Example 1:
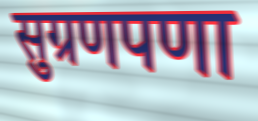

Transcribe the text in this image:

सुग्रणपणा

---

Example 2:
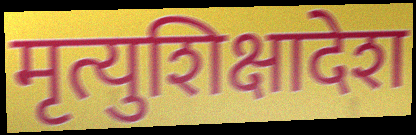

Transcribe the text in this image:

मृत्युशिक्षादेश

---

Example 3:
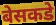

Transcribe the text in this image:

बेसकडे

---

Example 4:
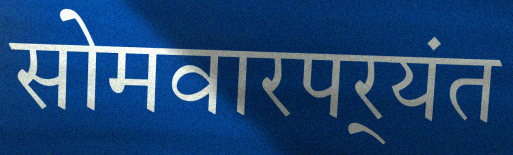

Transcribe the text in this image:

सोमवारपर्यंत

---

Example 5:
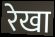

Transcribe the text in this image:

रेखा